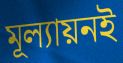
মূল্যায়নই